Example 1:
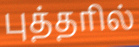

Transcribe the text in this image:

புத்தரில்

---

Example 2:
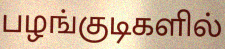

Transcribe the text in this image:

பழங்குடிகளில்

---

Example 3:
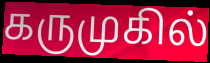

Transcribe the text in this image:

கருமுகில்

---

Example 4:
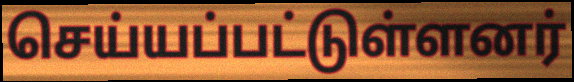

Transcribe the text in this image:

செய்யப்பட்டுள்ளனர்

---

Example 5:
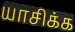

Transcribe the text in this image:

யாசிக்க